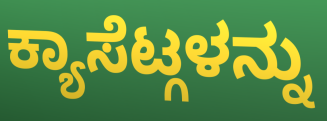
ಕ್ಯಾಸೆಟ್ಗಳನ್ನು